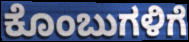
ಕೊಂಬುಗಳಿಗೆ